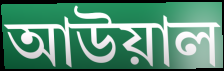
আউয়াল